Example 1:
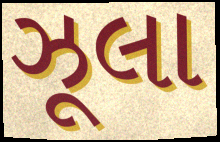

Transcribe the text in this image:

ઝૂલા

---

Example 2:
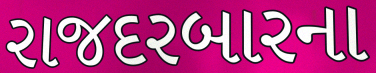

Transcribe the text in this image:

રાજદરબારના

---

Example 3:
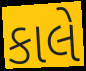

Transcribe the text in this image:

કાલે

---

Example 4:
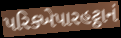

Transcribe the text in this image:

પરિક્ખેપારહટ્ઠાનં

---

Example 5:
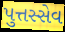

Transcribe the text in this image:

પુત્તસ્સેવ